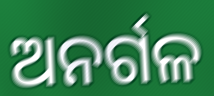
ଅନର୍ଗଳ